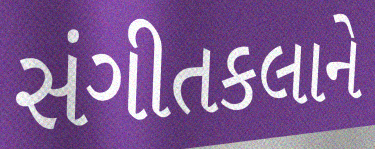
સંગીતકલાને